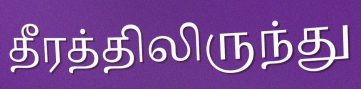
தீரத்திலிருந்து